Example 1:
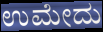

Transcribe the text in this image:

ಉಮೇದು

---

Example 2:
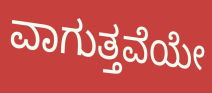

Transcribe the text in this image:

ವಾಗುತ್ತವೆಯೇ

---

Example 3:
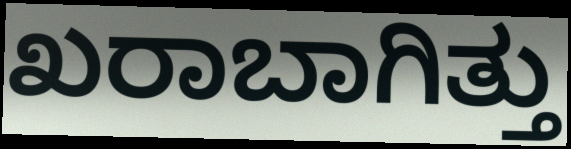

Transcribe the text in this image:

ಖರಾಬಾಗಿತ್ತು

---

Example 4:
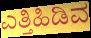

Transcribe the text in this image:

ಎತ್ತಿಹಿಡಿವ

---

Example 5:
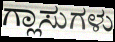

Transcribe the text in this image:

ಗ್ಲಾಸುಗಳು